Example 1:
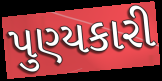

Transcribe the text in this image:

પુણ્યકારી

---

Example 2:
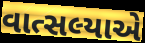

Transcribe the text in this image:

વાત્સલ્યાએ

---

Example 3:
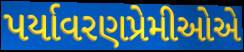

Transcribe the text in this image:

પર્યાવરણપ્રેમીઓએ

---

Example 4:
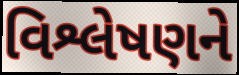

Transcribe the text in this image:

વિશ્લેષણને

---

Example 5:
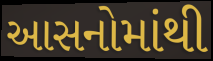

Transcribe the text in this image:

આસનોમાંથી